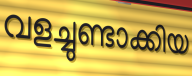
വളച്ചുണ്ടാക്കിയ